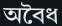
অবৈধ